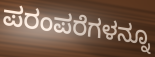
ಪರಂಪರೆಗಳನ್ನೂ